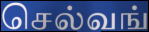
செல்வங்